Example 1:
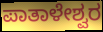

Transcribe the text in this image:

ಪಾತಾಳೇಶ್ವರ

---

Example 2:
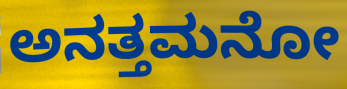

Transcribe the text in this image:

ಅನತ್ತಮನೋ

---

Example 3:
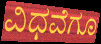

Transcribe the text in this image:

ವಿಧವೆಗೂ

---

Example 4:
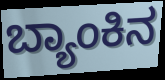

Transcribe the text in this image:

ಬ್ಯಾಂಕಿನ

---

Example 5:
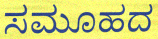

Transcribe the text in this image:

ಸಮೂಹದ